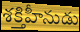
శక్తిహీనుడు